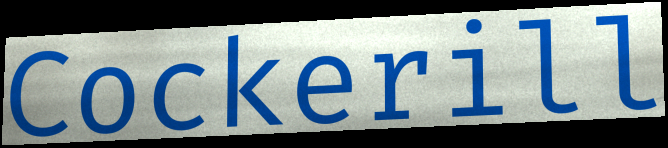
Cockerill